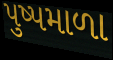
પુષ્પમાળા